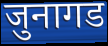
जुनागड